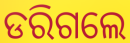
ଡରିଗଲେ